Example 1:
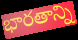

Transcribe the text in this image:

భారతాన్ని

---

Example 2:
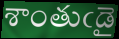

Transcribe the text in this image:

శాంతుఁడై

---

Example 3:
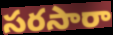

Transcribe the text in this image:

సరసారా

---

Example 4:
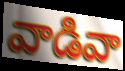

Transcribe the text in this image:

వాడివా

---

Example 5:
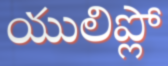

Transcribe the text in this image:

యులిప్లో